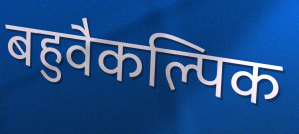
बहुवैकल्पिक